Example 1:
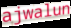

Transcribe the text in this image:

ajwalun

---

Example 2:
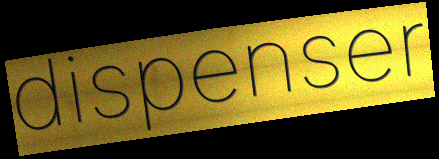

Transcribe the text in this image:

dispenser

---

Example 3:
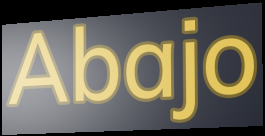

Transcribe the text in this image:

Abajo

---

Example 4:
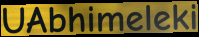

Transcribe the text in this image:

UAbhimeleki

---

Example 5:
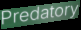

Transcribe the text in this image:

Predatory